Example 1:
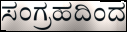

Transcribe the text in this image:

ಸಂಗ್ರಹದಿಂದ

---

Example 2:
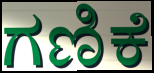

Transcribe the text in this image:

ಗಣಿಕೆ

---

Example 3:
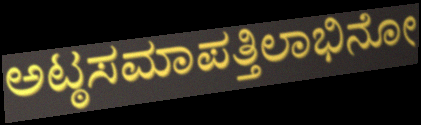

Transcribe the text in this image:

ಅಟ್ಠಸಮಾಪತ್ತಿಲಾಭಿನೋ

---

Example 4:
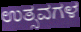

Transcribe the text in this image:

ಉತ್ಸವಗಳ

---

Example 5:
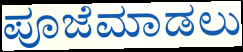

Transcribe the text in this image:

ಪೂಜೆಮಾಡಲು